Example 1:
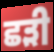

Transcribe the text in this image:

ਛੜੀ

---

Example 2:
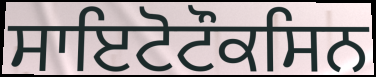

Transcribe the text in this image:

ਸਾਇਟੋਟੌਕਸਿਨ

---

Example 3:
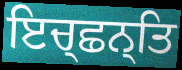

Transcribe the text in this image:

ਇਚ੍ਛਨ੍ਤਿ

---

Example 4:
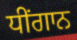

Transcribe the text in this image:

ਧੀਂਗਾਨ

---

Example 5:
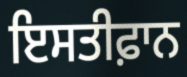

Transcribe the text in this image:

ਇਸਤੀਫ਼ਾਨ